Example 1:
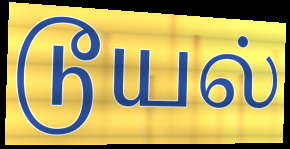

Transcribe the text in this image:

டூயல்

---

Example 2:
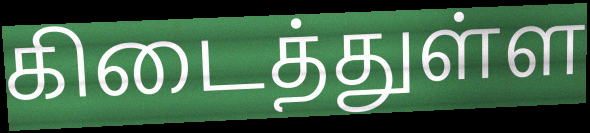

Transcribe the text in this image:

கிடைத்துள்ள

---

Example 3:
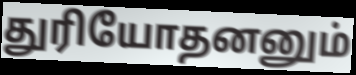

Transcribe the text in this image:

துரியோதனனும்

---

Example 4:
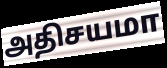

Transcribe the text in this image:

அதிசயமா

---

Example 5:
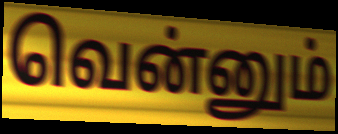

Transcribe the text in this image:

வென்னும்